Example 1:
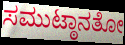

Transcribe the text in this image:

ಸಮುಟ್ಠಾನತೋ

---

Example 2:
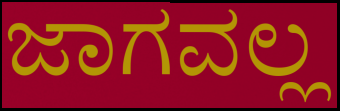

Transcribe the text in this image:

ಜಾಗವಲ್ಲ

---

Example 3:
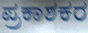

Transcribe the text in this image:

ಪ್ರಕಾಶಕರ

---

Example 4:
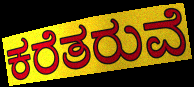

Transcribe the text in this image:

ಕರೆತರುವೆ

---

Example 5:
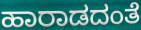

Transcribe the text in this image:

ಹಾರಾಡದಂತೆ